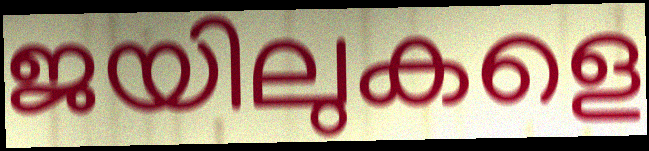
ജയിലുകളെ